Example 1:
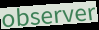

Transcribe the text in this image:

observer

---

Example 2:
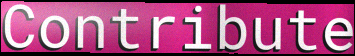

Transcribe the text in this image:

Contribute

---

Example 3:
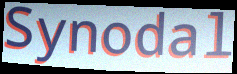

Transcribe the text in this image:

Synodal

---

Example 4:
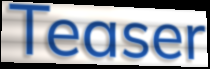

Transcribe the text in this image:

Teaser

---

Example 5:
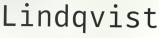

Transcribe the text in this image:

Lindqvist